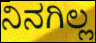
ನಿನಗಿಲ್ಲ